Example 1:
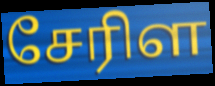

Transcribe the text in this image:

சேரிள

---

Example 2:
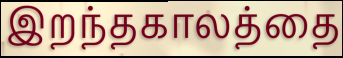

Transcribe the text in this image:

இறந்தகாலத்தை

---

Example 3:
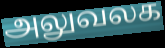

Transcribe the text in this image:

அலுவலக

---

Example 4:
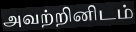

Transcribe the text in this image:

அவற்றினிடம்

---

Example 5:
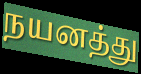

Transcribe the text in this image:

நயனத்து